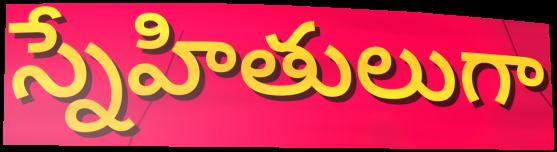
స్నేహితులుగా